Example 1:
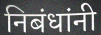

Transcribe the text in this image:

निबंधांनी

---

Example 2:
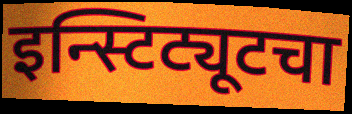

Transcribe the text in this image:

इन्स्टिट्यूटचा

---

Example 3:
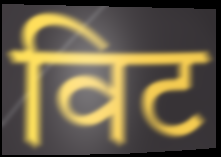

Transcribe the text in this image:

विट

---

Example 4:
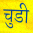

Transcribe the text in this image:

चुडी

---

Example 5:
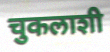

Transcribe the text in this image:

चुकलाशी